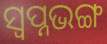
ସ୍ୱପ୍ନଭଙ୍ଗ